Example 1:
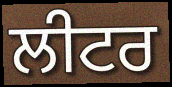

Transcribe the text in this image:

ਲੀਟਰ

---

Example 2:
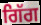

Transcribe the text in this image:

ਗਿੱਗ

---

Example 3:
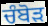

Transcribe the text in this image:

ਚੰਬੋੜ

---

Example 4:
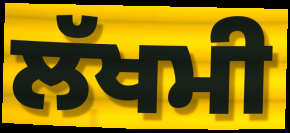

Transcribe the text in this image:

ਲੱਖਮੀ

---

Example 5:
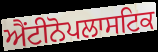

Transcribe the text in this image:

ਐਂਟੀਨੋਪਲਾਸਟਿਕ